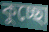
কুচ্ছো